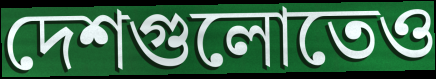
দেশগুলোতেও